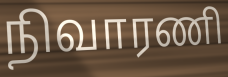
நிவாரணி